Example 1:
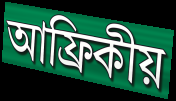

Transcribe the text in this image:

আফ্ৰিকীয়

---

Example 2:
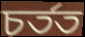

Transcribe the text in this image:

চৰ্তত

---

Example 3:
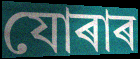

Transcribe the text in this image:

যোৰাৰ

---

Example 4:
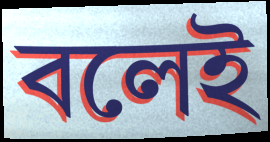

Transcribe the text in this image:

বলেই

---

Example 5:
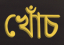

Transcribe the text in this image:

খোঁচ